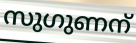
സുഗുണന്